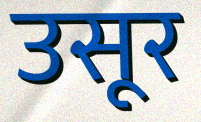
उसूर